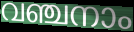
വഞ്ചനാം